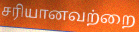
சரியானவற்றை